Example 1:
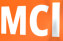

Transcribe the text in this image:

MCl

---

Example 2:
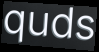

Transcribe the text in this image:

quds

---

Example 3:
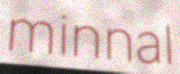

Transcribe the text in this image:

minnal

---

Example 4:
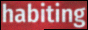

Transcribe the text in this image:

habiting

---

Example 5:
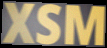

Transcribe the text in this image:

XSM